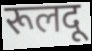
रूलदू